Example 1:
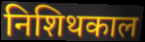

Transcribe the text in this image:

निशिथकाल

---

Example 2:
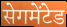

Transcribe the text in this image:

सेगमेंटेड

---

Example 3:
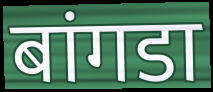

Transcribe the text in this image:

बांगडा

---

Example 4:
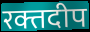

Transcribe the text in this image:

रक्तदीप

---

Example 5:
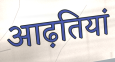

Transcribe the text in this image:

आढ़तियां